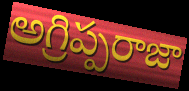
అగ్రిప్పరాజా